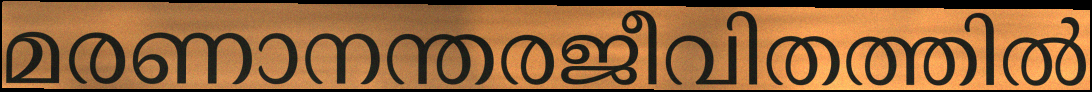
മരണാനന്തരജീവിതത്തിൽ